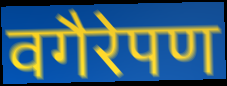
वगैरेपण